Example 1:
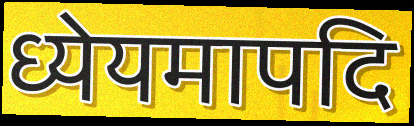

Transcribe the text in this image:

ध्येयमापदि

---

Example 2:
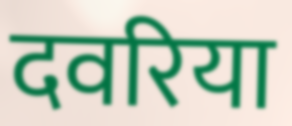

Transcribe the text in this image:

दवरिया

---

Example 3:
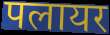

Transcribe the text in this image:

पलायर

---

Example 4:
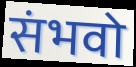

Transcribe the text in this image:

संभवो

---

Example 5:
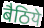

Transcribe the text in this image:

बैठिये